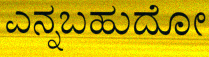
ಎನ್ನಬಹುದೋ